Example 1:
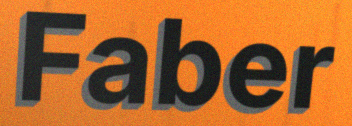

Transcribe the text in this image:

Faber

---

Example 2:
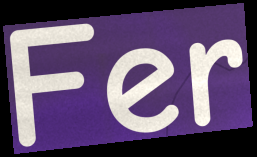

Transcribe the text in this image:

Fer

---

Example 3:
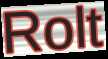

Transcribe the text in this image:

Rolt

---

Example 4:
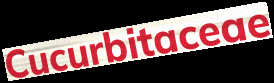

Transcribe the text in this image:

Cucurbitaceae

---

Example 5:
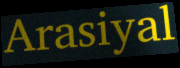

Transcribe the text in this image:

Arasiyal